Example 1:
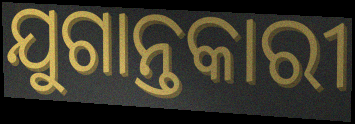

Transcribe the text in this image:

ଯୁଗାନ୍ତକାରୀ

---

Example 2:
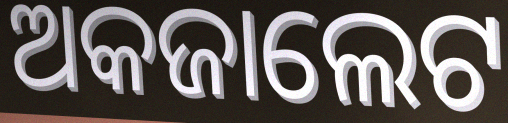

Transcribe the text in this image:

ଅକଜାଲେଟ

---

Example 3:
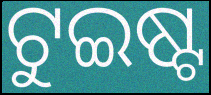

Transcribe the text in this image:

ଟୁଇଷ୍ଟ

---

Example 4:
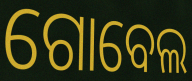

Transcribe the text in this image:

ଗୋବେଲ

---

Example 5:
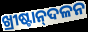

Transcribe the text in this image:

ଖ୍ରୀଷ୍ଟାନ୍‌ଦଳନ